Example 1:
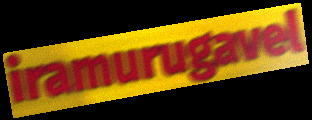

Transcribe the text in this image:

iramurugavel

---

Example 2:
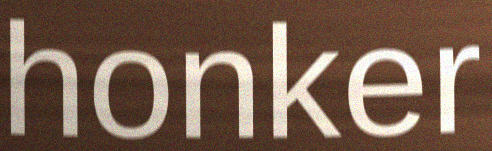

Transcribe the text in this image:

honker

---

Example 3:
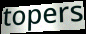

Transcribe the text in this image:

topers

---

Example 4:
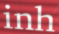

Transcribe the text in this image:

inh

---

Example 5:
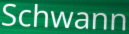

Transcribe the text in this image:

Schwann